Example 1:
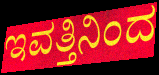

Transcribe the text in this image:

ಇವತ್ತಿನಿಂದ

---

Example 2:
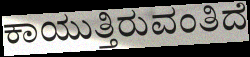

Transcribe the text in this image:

ಕಾಯುತ್ತಿರುವಂತಿದೆ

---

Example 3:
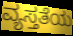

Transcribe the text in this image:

ವ್ಯಸ್ತತೆಯ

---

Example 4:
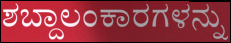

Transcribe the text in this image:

ಶಬ್ದಾಲಂಕಾರಗಳನ್ನು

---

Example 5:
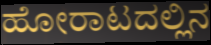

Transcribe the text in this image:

ಹೋರಾಟದಲ್ಲಿನ